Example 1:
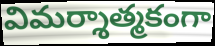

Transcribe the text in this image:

విమర్శాత్మకంగా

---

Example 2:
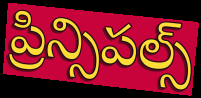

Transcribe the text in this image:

ప్రిన్సిపల్స్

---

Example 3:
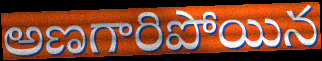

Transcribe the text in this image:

అణగారిపోయిన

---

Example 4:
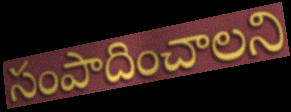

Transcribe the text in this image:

సంపాదించాలని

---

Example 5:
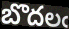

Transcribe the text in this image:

బొదలఁ